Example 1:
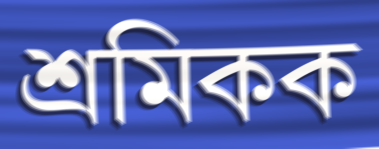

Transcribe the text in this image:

শ্ৰমিকক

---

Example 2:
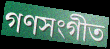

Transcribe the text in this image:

গণসংগীত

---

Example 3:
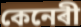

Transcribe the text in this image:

কেনেৰী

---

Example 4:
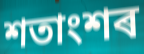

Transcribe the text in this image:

শতাংশৰ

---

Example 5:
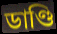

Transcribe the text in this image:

ডাণ্ডি